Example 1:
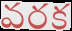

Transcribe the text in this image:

వరక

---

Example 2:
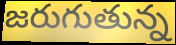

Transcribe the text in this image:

జరుగుతున్న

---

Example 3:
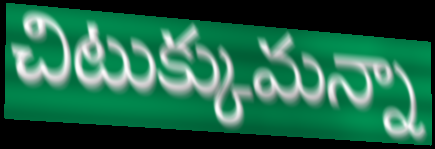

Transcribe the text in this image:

చిటుక్కుమన్నా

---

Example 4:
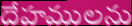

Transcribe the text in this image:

దేహములను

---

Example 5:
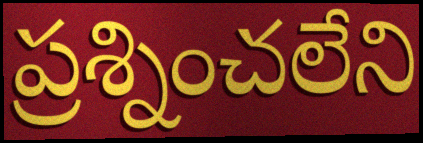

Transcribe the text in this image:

ప్రశ్నించలేని